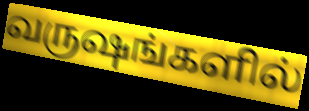
வருஷங்களில்